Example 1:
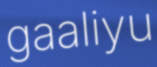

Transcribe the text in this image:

gaaliyu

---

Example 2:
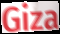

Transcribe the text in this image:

Giza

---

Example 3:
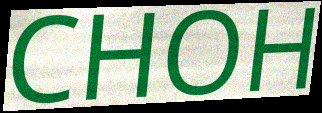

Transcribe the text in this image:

CHOH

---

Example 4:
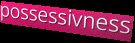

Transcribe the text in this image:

possessivness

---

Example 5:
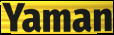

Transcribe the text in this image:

Yaman